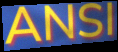
ANSI